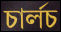
চাৰ্লচ